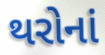
થરોનાં